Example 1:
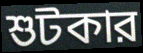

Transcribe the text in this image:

শুটকার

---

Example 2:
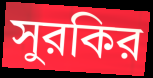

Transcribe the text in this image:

সুরকির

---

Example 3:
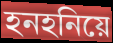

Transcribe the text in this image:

হনহনিয়ে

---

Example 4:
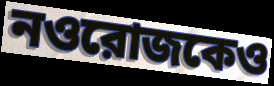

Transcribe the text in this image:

নওরোজকেও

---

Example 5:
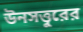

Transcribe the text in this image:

উনসত্তুরের